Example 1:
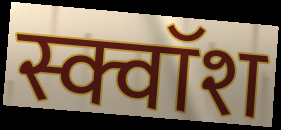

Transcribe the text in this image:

स्क्वॉश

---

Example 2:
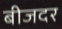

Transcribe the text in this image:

बीजदर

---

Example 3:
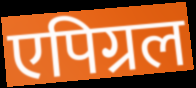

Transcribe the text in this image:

एपिग्रल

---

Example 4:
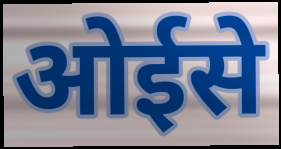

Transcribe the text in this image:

ओईसे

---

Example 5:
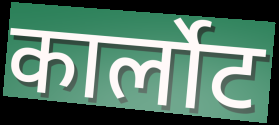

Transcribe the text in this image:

कार्लोट